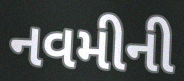
નવમીની